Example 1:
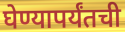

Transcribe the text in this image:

घेण्यापर्यंतची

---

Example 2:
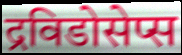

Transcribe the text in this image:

द्रविडोसेप्स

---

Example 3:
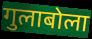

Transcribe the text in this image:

गुलाबोला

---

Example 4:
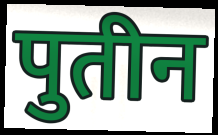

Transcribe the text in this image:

पुतीन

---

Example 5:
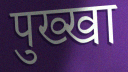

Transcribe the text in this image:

पुख्खा